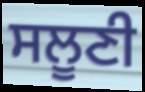
ਸਲੂਣੀ